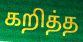
கறித்த